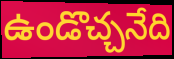
ఉండొచ్చనేది